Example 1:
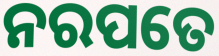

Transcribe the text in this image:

ନରପତେ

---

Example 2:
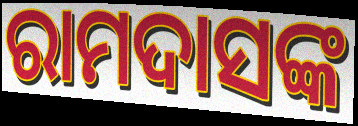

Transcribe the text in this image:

ରାମଦାସଙ୍କ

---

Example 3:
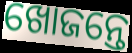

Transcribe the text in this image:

ଖୋଜନ୍ତେ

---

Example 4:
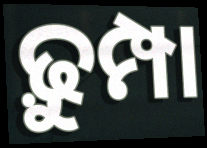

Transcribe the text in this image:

ଢ଼ୁମ୍ପା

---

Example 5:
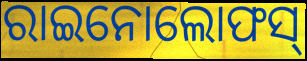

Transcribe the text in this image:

ରାଇନୋଲୋଫସ୍